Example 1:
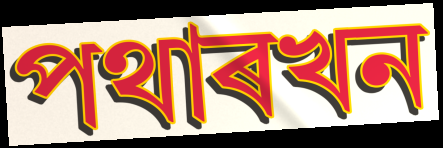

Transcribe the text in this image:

পথাৰখন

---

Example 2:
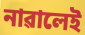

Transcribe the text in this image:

নাৱালেই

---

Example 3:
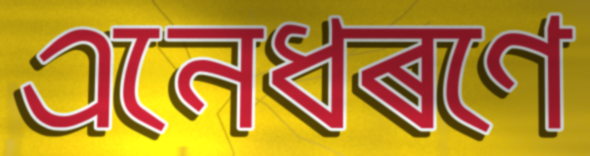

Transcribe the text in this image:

এনেধৰণে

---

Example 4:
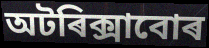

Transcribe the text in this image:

অটৰিক্সাবোৰ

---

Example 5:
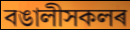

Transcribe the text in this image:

বঙালীসকলৰ